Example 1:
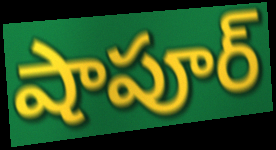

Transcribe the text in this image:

షాపూర్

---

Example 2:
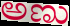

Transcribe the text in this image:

అణు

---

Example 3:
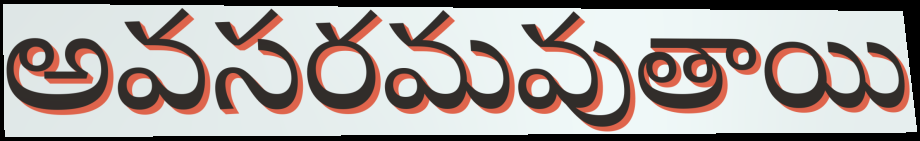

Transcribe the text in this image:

అవసరమవుతాయి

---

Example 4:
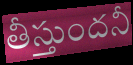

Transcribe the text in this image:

తీస్తుందనీ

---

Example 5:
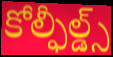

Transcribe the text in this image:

కోల్ఫీల్డ్స్